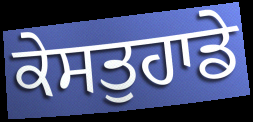
ਕੇਸਤੁਹਾਡੇ